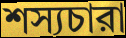
শস্যচারা